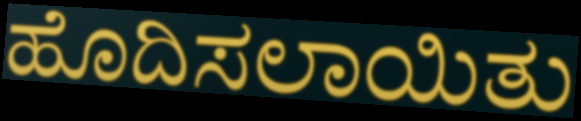
ಹೊದಿಸಲಾಯಿತು